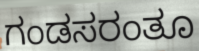
ಗಂಡಸರಂತೂ